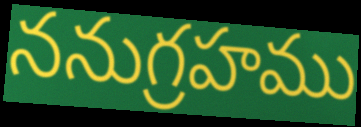
ననుగ్రహము